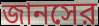
জানসের